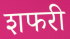
शफरी